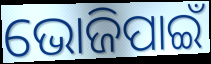
ଭୋଜିପାଇଁ